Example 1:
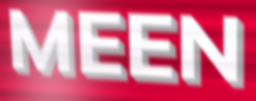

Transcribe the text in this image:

MEEN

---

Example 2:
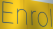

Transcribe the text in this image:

Enrol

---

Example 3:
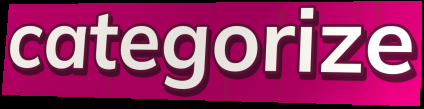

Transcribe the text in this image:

categorize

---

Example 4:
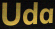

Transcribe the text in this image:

Uda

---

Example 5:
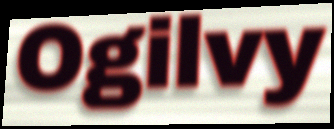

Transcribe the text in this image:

Ogilvy